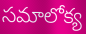
సమాలోక్య